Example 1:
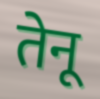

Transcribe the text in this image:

तेनू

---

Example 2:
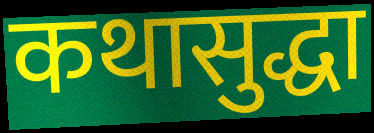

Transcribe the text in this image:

कथासुद्धा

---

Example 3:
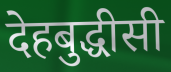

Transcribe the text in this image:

देहबुद्धीसी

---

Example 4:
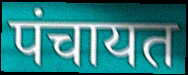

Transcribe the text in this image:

पंचायत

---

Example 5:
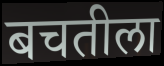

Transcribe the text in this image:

बचतीला